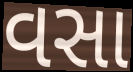
વસા